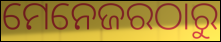
ମେନେଜରଠାରୁ